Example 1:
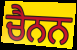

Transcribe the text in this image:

ਚੈਨਨ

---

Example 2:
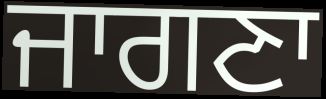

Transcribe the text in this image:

ਜਾਗਣਾ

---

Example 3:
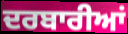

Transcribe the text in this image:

ਦਰਬਾਰੀਆਂ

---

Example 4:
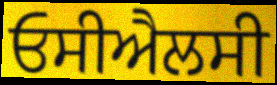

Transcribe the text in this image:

ਓਸੀਐਲਸੀ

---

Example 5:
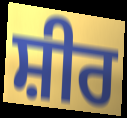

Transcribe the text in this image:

ਸ਼ੀਰ